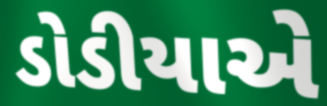
ડોડીયાએ